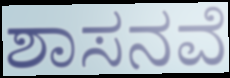
ಶಾಸನವೆ